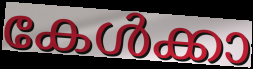
കേൾക്കാ